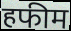
हफीम